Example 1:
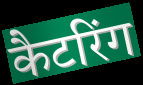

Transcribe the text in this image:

कैटरिंग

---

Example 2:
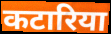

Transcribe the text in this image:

कटारिया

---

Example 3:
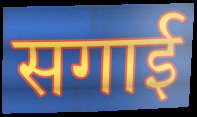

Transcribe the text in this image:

सगाई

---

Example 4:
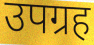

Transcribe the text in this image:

उपग्रह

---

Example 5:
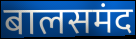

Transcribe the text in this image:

बालसमंद